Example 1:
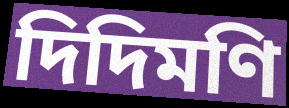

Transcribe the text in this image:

দিদিমণি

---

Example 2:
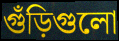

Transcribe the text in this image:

গুঁড়িগুলো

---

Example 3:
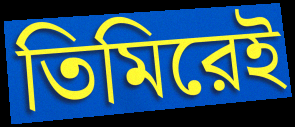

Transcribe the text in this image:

তিমিরেই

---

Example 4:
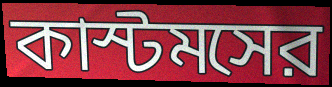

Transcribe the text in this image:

কাস্টমসের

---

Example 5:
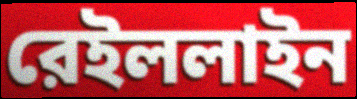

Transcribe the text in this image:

রেইললাইন